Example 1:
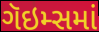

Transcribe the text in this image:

ગૅઇમ્સમાં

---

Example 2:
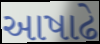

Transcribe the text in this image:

આષાઢે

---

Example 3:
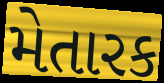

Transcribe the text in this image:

મેતારક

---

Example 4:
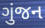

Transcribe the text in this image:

ગુંજન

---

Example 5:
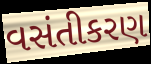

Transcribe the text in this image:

વસંતીકરણ